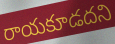
రాయకూడదని